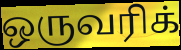
ஒருவரிக்